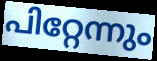
പിറ്റേന്നും